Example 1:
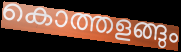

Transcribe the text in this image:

കൊത്തളങ്ങും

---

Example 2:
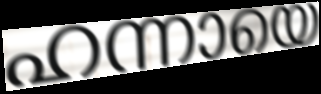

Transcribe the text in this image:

ഹന്നായെ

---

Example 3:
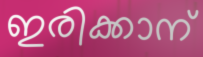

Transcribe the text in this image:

ഇരിക്കാന്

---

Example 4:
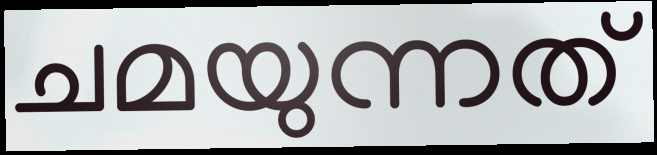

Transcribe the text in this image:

ചമയുന്നത്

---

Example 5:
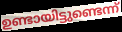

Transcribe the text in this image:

ഉണ്ടായിട്ടുണ്ടെന്ന്